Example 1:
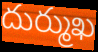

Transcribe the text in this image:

దుర్ముఖ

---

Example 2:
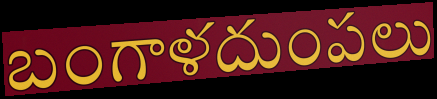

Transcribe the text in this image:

బంగాళదుంపలు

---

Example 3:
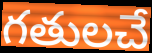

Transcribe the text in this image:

గతులచే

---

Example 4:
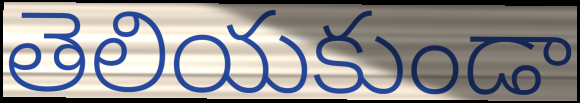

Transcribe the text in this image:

తెలియకుండా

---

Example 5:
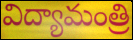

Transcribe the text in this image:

విద్యామంత్రి